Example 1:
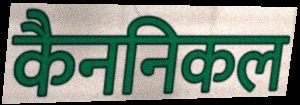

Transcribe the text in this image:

कैननिकल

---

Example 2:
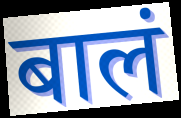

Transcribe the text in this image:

बालं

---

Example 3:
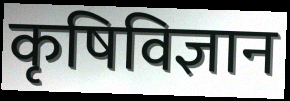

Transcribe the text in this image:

कृषिविज्ञान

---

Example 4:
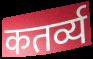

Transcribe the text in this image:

कतर्व्य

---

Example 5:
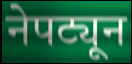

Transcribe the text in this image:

नेपट्यून